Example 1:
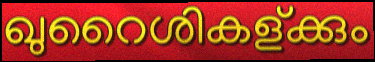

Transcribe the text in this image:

ഖുറൈശികള്ക്കും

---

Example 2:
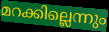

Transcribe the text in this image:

മറക്കില്ലെന്നും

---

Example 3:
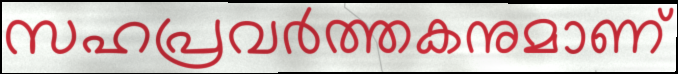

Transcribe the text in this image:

സഹപ്രവർത്തകനുമാണ്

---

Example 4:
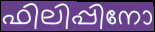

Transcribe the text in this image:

ഫിലിപ്പിനോ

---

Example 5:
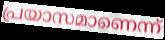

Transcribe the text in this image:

പ്രയാസമാണെന്ന്